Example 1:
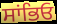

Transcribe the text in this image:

ਸਾਂਭਿਓ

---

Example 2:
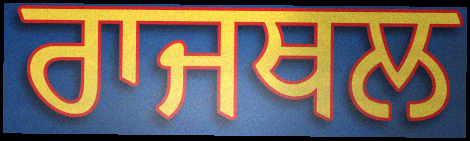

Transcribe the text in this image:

ਰਾਜਥਲ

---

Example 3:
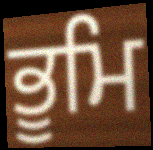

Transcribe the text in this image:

ਭੂਮਿ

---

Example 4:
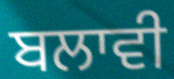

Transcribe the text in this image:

ਬਲਾਵੀ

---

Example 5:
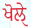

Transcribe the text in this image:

ਖੋਲੑੇ